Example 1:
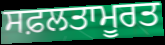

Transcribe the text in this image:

ਸਫ਼ਲਤਾਮੂਰਤ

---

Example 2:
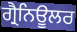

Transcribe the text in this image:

ਗ੍ਰੈਨਿਊਲਰ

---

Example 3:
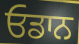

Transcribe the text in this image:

ਓਡਾਨ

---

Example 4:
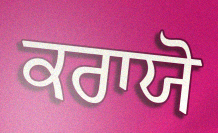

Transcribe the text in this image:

ਕਰਾਯੋ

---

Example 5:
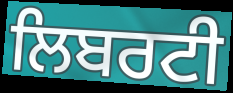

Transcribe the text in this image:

ਲਿਬਰਟੀ